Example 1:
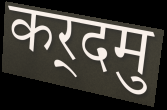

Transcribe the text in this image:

कर्दमु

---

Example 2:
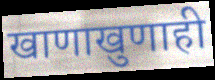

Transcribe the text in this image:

खाणाखुणाही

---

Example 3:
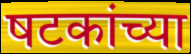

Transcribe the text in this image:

षटकांच्या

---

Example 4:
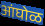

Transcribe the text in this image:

आंघोळ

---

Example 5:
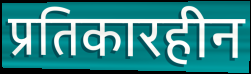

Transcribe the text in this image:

प्रतिकारहीन